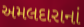
અમલદારાનાં